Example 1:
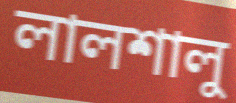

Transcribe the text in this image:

লালশালু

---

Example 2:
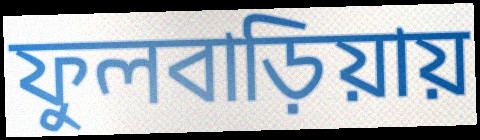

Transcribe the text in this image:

ফুলবাড়িয়ায়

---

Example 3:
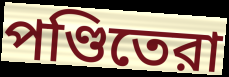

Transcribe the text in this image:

পণ্ডিতেরা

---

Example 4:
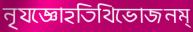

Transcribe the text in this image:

নৃযজ্ঞোহতিথিভোজনম্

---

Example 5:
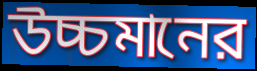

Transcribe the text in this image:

উচ্চমানের